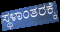
ಸ್ಥಳಾಂತರಕ್ಕೆ